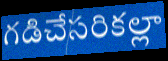
గడిచేసరికల్లా